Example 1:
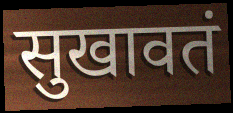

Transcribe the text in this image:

सुखावतं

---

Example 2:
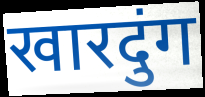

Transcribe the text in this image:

खारदुंग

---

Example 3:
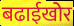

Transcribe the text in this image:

बढाईखोर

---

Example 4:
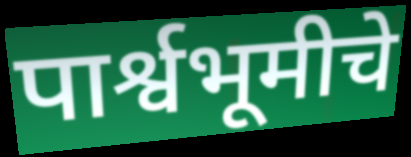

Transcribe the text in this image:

पार्श्वभूमीचे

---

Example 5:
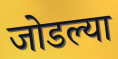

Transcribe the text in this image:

जोडल्या